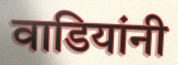
वाडियांनी